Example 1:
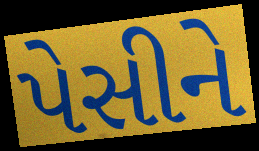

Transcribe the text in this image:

પેસીને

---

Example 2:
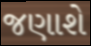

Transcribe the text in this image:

જણાશે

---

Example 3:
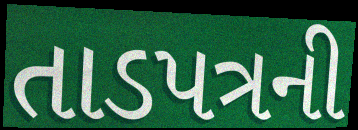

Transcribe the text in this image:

તાડપત્રની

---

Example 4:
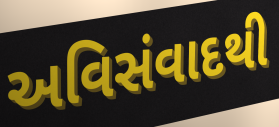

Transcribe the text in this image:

અવિસંવાદથી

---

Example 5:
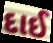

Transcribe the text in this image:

દાઈ